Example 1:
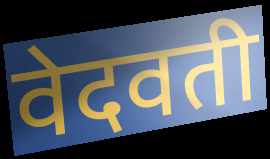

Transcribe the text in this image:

वेदवती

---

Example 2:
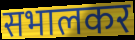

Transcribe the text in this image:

सभालकर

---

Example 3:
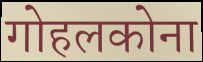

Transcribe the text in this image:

गोहलकोना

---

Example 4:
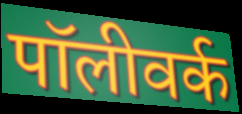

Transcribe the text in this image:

पॉलीवर्क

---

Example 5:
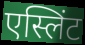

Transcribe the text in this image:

एस्लिंट